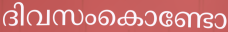
ദിവസംകൊണ്ടോ